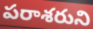
పరాశరుని